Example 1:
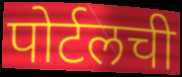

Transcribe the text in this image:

पोर्टलची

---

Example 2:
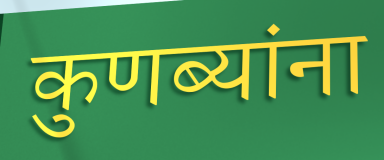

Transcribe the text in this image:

कुणब्यांना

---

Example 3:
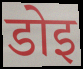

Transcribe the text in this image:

डोइ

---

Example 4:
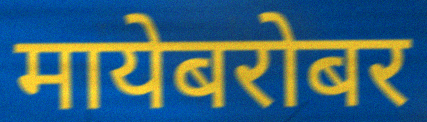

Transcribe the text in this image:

मायेबरोबर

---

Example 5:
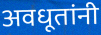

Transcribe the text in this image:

अवधूतांनी